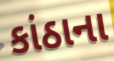
કાંઠાના